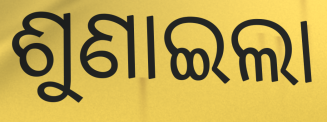
ଶୁଣାଇଲା